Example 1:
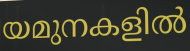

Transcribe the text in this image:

യമുനകളിൽ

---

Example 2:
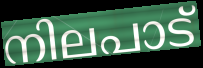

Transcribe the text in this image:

നിലപാട്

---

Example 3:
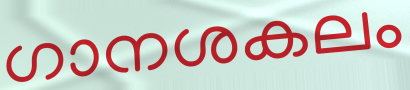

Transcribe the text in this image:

ഗാനശകലം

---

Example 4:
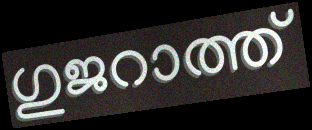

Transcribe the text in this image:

ഗുജറാത്ത്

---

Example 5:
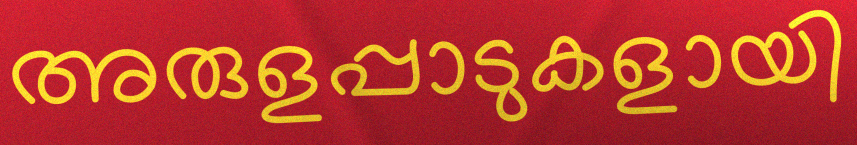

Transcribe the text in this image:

അരുളപ്പാടുകളായി